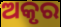
ଅକୃର